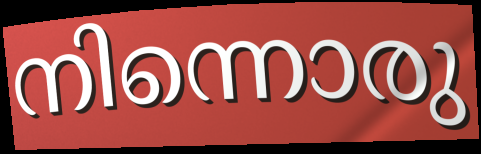
നിന്നൊരു